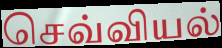
செவ்வியல்